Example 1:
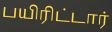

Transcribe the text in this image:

பயிரிட்டார்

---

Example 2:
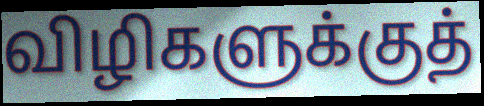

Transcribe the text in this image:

விழிகளுக்குத்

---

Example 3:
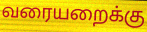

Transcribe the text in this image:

வரையறைக்கு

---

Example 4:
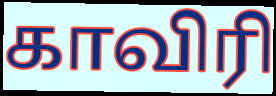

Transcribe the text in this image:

காவிரி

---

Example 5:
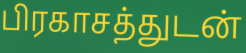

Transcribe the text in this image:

பிரகாசத்துடன்